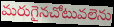
మరుగైనచోటువలెను